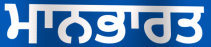
ਮਾਨਭਾਰਤ